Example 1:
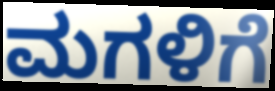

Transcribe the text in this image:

ಮಗಳಿಗೆ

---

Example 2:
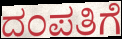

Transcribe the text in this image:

ದಂಪತಿಗೆ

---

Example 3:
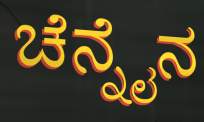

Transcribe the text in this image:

ಚೆನ್ನೈನ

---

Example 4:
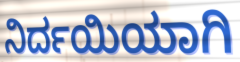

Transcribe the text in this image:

ನಿರ್ದಯಿಯಾಗಿ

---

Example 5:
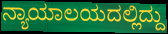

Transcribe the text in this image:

ನ್ಯಾಯಾಲಯದಲ್ಲಿದ್ದು